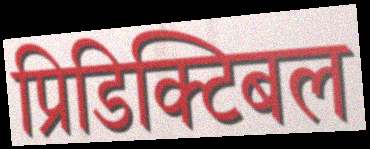
प्रिडिक्टिबल